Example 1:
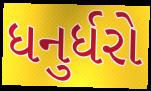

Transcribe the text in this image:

ધનુર્ધરો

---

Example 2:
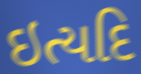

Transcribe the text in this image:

ઇત્યદિ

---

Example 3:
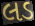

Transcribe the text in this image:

લડ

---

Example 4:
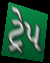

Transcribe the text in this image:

ટ્રેપ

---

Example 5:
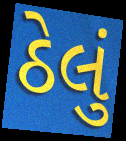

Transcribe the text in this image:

ઠેલું